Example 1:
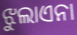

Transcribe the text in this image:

ଝୁଲାଏନା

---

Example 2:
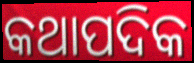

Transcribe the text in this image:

କଥାପଦିକ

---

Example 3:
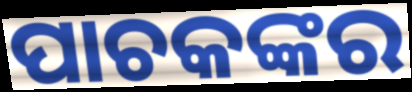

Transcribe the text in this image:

ପାଚକଙ୍କର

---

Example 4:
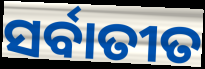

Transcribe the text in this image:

ସର୍ବାତୀତ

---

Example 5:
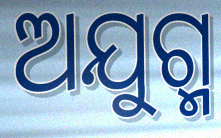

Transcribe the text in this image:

ଅଯୁଗ୍ମ